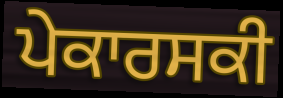
ਪੇਕਾਰਸਕੀ